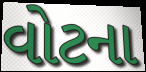
વોટના